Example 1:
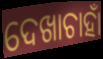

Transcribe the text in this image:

ଦେଖାଚାହାଁ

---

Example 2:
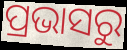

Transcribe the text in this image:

ପ୍ରଭାସରୁ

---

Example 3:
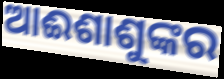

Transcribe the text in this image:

ଆଈଶାଶୁଙ୍କର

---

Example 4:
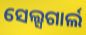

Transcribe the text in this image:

ସେଲ୍ସଗାର୍ଲ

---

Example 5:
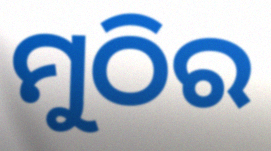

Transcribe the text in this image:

ମୁଠିର